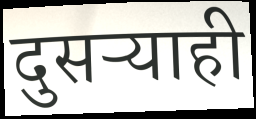
दुसऱ्याही